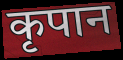
कृपान